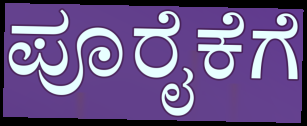
ಪೂರೈಕೆಗೆ